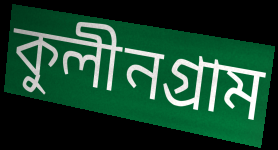
কুলীনগ্রাম